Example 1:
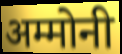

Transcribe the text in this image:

अम्मोनी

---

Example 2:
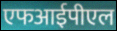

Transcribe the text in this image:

एफआईपीएल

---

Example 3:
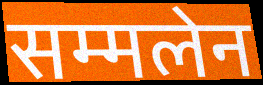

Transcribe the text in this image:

सम्मलेन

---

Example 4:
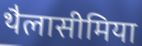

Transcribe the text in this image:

थैलासीमिया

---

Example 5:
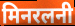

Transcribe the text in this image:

मिनरलनी